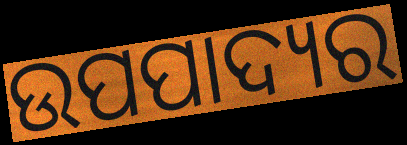
ଉପପାଦ୍ୟର